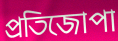
প্ৰতিজোপা